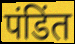
पंडिंत